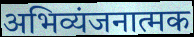
अभिव्यंजनात्मक